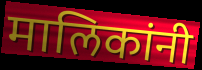
मालिकांनी